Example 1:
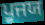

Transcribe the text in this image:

ਪੂਜਯ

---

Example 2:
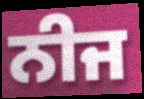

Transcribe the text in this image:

ਨੀਜ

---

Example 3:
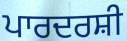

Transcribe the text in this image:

ਪਾਰਦਰਸ਼ੀ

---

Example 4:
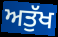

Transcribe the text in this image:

ਅਤੁੱਖ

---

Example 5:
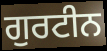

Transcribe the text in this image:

ਗੁਰਟੀਨ